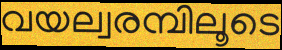
വയല്വരമ്പിലൂടെ